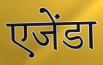
एजेंडा